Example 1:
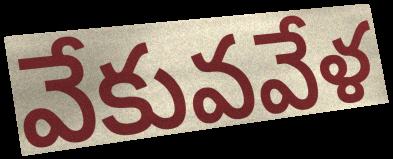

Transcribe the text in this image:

వేకువవేళ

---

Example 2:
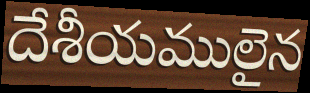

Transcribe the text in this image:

దేశీయములైన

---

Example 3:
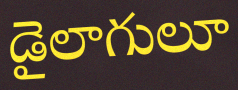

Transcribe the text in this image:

డైలాగులూ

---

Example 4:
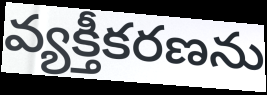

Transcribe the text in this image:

వ్యక్తీకరణను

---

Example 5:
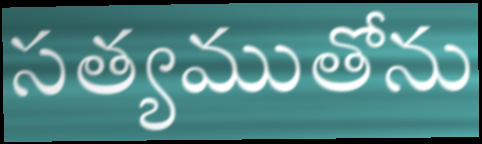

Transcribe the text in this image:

సత్యముతోను